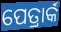
ପେତ୍ରାର୍କ